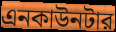
এনকাউনটার